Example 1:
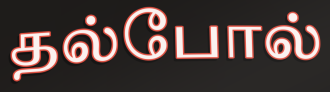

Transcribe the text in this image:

தல்போல்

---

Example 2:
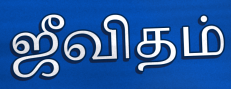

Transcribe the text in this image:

ஜீவிதம்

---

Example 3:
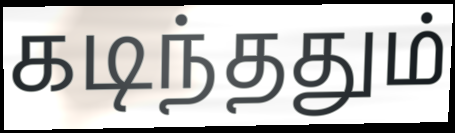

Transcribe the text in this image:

கடிந்ததும்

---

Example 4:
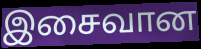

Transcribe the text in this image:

இசைவான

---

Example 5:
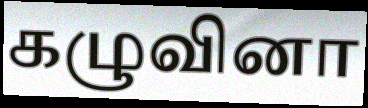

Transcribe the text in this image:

கழுவினா